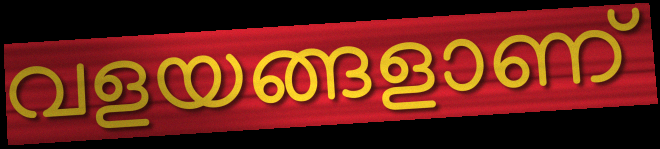
വളയങ്ങളാണ്